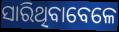
ସାରିଥିବାବେଳେ